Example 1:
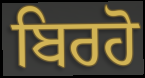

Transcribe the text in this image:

ਬਿਰਹੋ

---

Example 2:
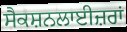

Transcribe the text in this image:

ਸੈਕਸ਼ਨਲਾਈਜ਼ਰਾਂ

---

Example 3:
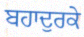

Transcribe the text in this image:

ਬਹਾਦੁਰਕੇ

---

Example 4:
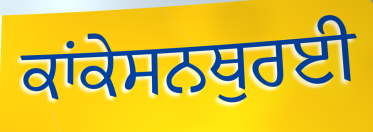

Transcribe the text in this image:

ਕਾਂਕੇਸਨਥੁਰਈ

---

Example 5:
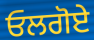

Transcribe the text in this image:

ਓਲਗੋਏ